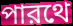
পারথে